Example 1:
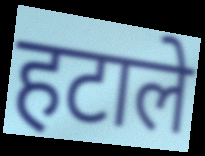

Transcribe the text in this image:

हटाले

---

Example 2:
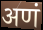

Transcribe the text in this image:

अणं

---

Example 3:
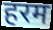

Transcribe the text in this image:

हरम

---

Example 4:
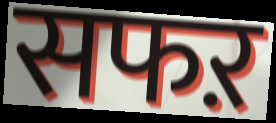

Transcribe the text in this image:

सफऱ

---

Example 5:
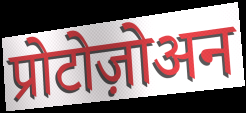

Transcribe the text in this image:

प्रोटोज़ोअन